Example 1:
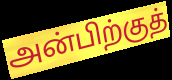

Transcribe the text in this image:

அன்பிற்குத்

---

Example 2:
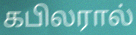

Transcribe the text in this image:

கபிலரால்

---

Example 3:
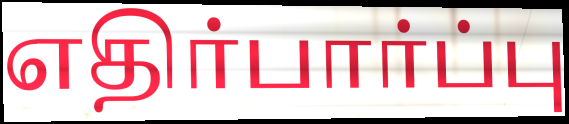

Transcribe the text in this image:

எதிர்பார்ப்பு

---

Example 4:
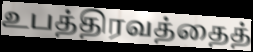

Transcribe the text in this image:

உபத்திரவத்தைத்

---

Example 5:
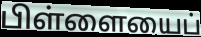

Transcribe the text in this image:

பிள்ளையைப்